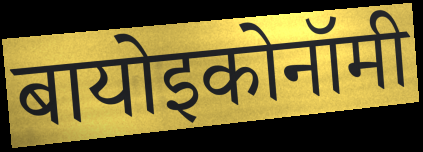
बायोइकोनॉमी